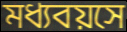
মধ্যবয়সে